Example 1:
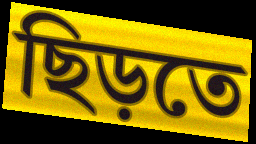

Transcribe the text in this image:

ছিড়তে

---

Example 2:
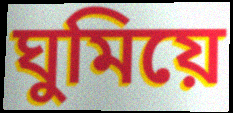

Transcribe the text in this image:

ঘুমিয়ে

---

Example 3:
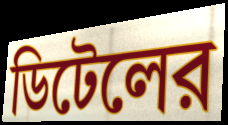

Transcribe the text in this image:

ডিটেলের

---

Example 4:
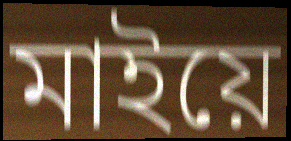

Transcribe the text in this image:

মাইয়ে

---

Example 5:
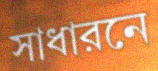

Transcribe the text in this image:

সাধারনে